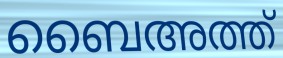
ബൈഅത്ത്